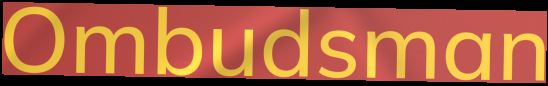
Ombudsman